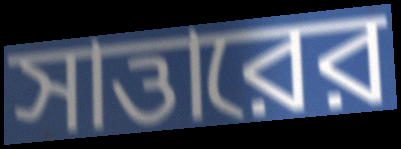
সাত্তারের